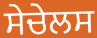
ਸੇਚੇਲਸ